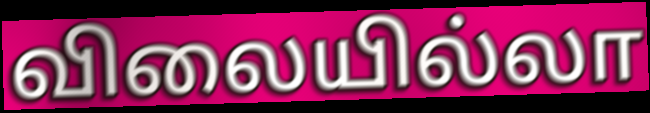
விலையில்லா